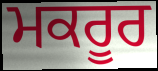
ਮਕਰੂਰ